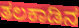
ತಲಕಾಡಿನ